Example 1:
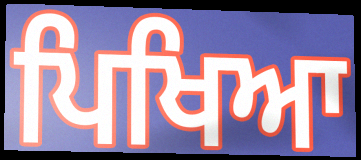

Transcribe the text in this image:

ਪਿਖਿਆ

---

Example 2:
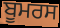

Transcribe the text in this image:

ਬੂਮਰਸ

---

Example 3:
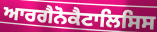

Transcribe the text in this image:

ਆਰਗੈਨੋਕੈਟਾਲਿਸਿਸ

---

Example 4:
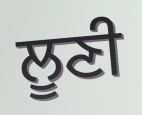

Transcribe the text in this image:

ਲੂਣੀ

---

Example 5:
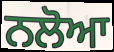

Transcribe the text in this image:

ਨਲੋਆ